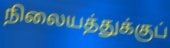
நிலையத்துக்குப்